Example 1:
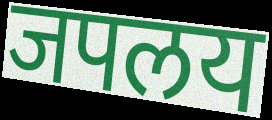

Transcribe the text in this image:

जपलय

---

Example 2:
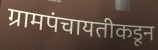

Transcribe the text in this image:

ग्रामपंचायतीकडून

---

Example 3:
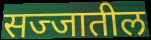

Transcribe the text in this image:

सज्जातील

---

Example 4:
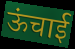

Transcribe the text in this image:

ऊंचाई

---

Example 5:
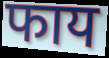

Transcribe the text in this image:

फाय